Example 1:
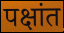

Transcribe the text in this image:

पक्षांत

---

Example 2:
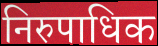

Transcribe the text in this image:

निरुपाधिक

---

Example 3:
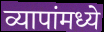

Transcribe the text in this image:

व्यापांमध्ये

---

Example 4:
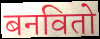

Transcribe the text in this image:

बनवितो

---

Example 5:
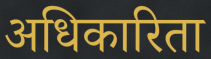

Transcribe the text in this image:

अधिकारिता